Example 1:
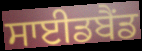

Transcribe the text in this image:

ਸਾਈਡਬੈਂਡ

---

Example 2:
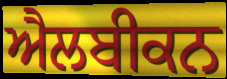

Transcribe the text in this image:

ਐਲਬੀਕਨ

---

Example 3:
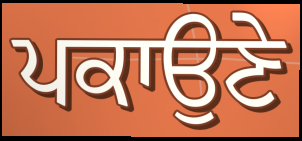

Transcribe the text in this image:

ਪਕਾਉਣੇ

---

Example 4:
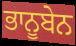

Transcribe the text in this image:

ਭਾਨੂਬੇਨ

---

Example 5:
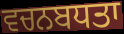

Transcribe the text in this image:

ਵਚਨਬਧਤਾ